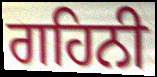
ਗਹਿਨੀ